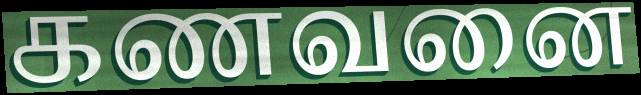
கணவனை